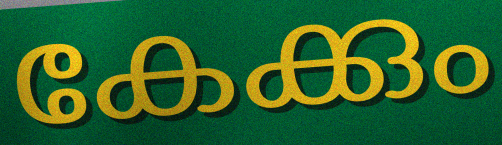
കേക്കും